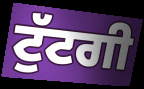
ਟੁੱਟਗੀ